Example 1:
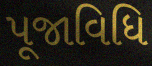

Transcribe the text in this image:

પૂજાવિધિ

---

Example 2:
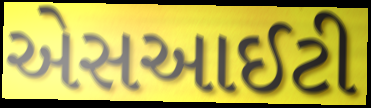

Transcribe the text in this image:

એસઆઈટી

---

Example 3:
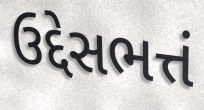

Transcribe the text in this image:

ઉદ્દેસભત્તં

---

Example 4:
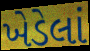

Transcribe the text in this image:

ખેડેલાં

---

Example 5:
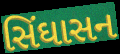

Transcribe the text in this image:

સિંઘાસન